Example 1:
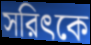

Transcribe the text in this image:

সরিৎকে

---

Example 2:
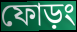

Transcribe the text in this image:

ফোড়ং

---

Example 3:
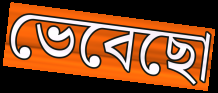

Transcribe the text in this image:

ভেবেছো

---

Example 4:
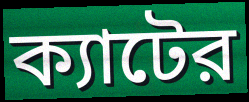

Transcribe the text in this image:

ক্যাটের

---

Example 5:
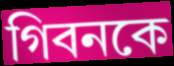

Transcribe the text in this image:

গিবনকে